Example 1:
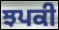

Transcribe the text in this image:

ਝਪਕੀ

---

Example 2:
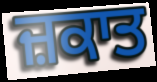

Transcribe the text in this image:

ਜ਼ਕਾਤ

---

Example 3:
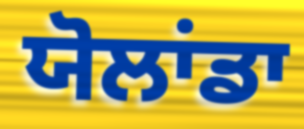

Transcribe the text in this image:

ਯੋਲਾਂਡਾ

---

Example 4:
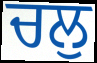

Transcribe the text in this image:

ਚਲੁ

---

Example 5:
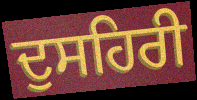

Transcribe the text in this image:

ਦੁਸਹਿਰੀ